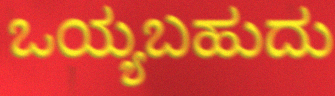
ಒಯ್ಯಬಹುದು